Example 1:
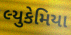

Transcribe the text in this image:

લ્યુકેમિયા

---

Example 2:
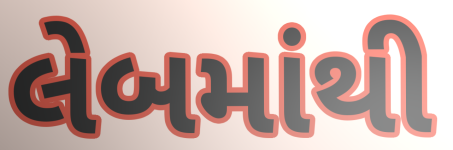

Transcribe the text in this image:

લેબમાંથી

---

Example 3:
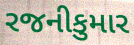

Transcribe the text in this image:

રજનીકુમાર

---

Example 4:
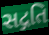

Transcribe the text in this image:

સદ્ગતિ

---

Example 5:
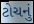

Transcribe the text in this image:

ટોચનું